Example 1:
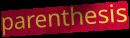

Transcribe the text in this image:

parenthesis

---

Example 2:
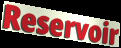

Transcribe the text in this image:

Reservoir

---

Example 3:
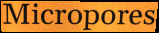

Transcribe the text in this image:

Micropores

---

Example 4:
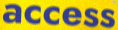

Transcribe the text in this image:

access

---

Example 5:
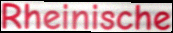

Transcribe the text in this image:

Rheinische